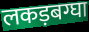
लकड़बग्घा